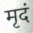
मृदं